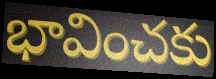
భావించకు